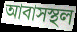
আবাসস্থল